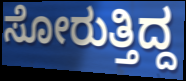
ಸೋರುತ್ತಿದ್ದ